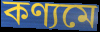
কণ্যমে